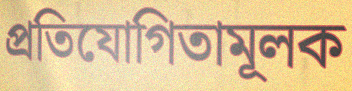
প্রতিযোগিতামূলক